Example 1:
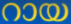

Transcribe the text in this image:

റായ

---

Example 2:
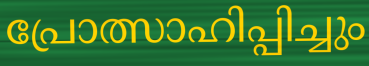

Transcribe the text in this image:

പ്രോത്സാഹിപ്പിച്ചും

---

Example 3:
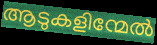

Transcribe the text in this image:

ആടുകളിന്മേൽ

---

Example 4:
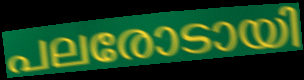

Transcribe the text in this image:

പലരോടായി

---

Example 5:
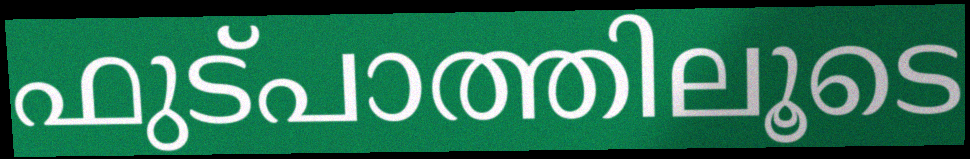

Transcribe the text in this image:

ഫുട്പാത്തിലൂടെ